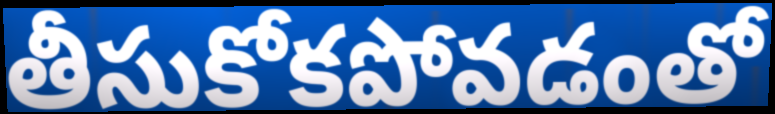
తీసుకోకపోవడంతో